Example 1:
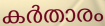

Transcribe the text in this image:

കർതാരം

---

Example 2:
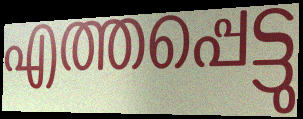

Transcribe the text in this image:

എത്തപ്പെട്ടു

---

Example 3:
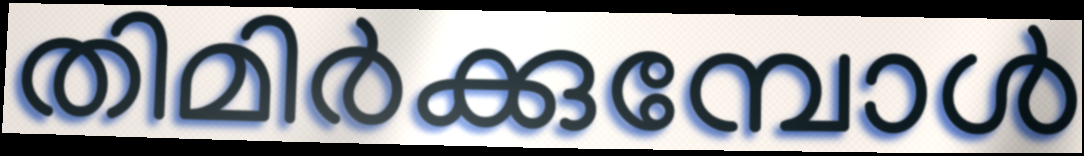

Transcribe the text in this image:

തിമിർക്കുമ്പോൾ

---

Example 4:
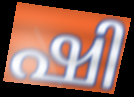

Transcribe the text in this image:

ഷി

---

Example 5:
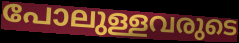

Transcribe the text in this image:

പോലുള്ളവരുടെ